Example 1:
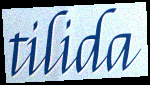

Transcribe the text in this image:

tilida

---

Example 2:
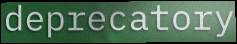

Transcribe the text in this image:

deprecatory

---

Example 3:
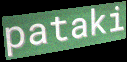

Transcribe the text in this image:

pataki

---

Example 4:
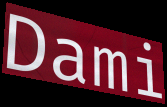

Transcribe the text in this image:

Dami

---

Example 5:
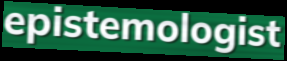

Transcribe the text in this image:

epistemologist